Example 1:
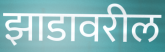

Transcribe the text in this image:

झाडावरील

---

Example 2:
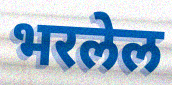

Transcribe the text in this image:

भरलेल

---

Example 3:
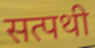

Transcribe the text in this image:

सत्पथी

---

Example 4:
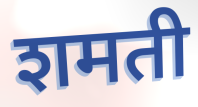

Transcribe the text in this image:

शमती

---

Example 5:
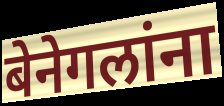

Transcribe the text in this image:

बेनेगलांना